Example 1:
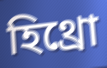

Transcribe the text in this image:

হিথ্রো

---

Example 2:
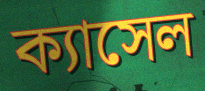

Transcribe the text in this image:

ক্যাসেল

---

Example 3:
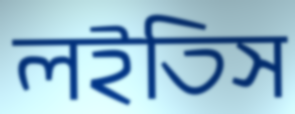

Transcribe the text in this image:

লইতিস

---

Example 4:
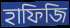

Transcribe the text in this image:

হাফিজি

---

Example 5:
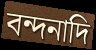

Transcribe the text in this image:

বন্দনাদি